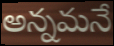
అన్నమనే